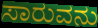
ಸಾರುವನು